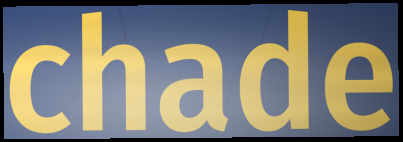
chade